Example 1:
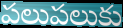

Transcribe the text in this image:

పలుపలుకు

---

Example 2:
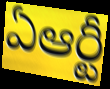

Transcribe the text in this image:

ఏఆర్టీ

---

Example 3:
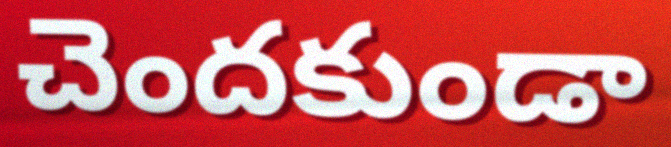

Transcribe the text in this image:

చెందకుండా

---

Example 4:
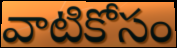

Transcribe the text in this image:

వాటికోసం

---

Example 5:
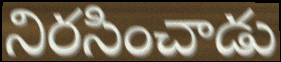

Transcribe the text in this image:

నిరసించాడు